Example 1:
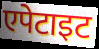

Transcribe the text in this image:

एपेटाइट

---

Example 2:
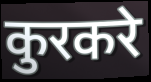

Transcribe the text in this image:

कुरकरे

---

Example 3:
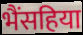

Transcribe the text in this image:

भैंसहिया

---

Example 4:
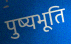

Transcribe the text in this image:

पुष्यभूति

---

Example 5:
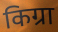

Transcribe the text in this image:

किग्रा